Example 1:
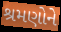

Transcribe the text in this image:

શ્રમણોને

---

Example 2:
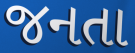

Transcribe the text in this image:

જનતા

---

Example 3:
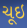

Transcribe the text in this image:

ચૂઇ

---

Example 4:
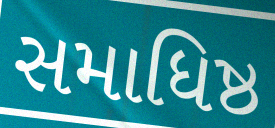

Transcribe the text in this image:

સમાધિષ્ઠ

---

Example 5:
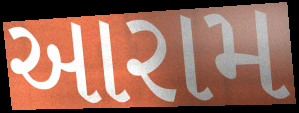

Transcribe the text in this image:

આરામ